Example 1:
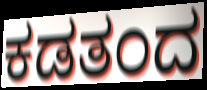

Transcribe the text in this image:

ಕಡತಂದ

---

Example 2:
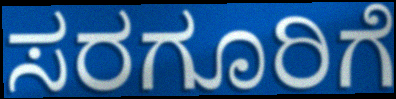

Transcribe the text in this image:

ಸರಗೂರಿಗೆ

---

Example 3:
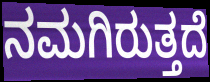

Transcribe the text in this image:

ನಮಗಿರುತ್ತದೆ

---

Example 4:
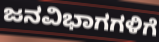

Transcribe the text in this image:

ಜನವಿಭಾಗಗಳಿಗೆ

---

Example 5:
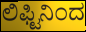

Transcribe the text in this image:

ಲಿಫ್ಟಿನಿಂದ